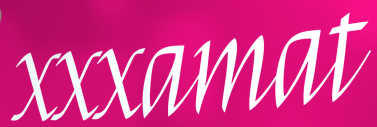
xxxamat